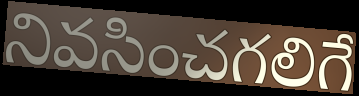
నివసించగలిగే